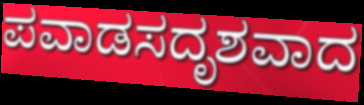
ಪವಾಡಸದೃಶವಾದ